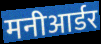
मनीआर्डर